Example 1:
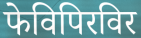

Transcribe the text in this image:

फेविपिरविर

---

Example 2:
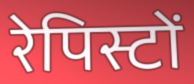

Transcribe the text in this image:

रेपिस्टों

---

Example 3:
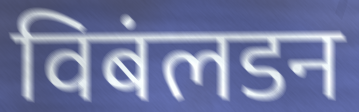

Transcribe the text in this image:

विबंलडन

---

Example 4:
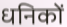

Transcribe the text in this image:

धनिकों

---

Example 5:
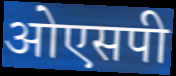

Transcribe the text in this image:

ओएसपी